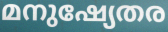
മനുഷ്യേതര